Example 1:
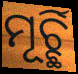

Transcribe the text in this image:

ମୂର୍ଚ୍ଛି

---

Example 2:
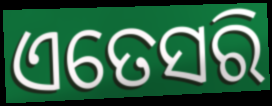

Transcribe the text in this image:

ଏତେସରି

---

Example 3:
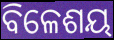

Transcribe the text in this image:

ବିଳେଶୟ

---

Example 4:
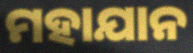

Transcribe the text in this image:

ମହାଯାନ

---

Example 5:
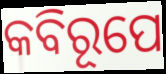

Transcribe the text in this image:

କବିରୂପେ